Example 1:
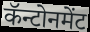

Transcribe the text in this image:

कॅन्टोनमेंट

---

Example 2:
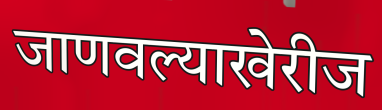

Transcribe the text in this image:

जाणवल्याखेरीज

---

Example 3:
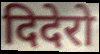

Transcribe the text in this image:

दिदेरो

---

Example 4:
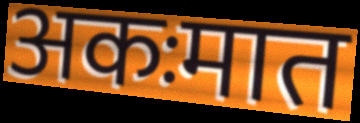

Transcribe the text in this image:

अकःमात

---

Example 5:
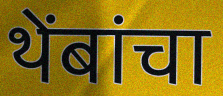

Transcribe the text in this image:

थेंबांचा